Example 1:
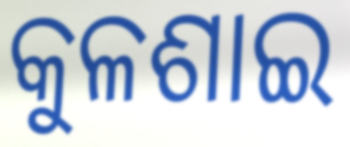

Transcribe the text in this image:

କୁଳଶାଇ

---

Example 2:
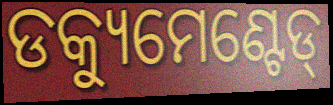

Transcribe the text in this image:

ଡକ୍ୟୁମେଣ୍ଟେଡ୍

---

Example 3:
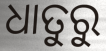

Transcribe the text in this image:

ଧାତୁରୁ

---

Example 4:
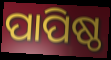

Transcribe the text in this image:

ପାପିଷ୍ଠ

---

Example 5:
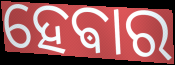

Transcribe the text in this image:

ହେଵାର